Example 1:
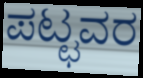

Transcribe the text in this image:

ಪಟ್ಟವರ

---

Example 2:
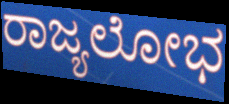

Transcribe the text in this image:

ರಾಜ್ಯಲೋಭ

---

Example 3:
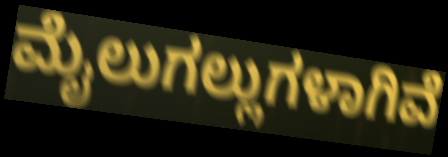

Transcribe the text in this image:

ಮೈಲುಗಲ್ಲುಗಳಾಗಿವೆ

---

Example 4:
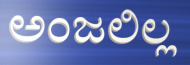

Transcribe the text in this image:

ಅಂಜಲಿಲ್ಲ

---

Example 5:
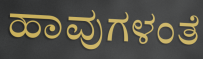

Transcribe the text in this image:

ಹಾವುಗಳಂತೆ